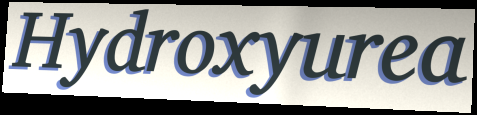
Hydroxyurea